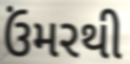
ઉંમરથી